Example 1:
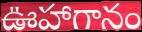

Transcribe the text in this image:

ఊహాగానం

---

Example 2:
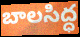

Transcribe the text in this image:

బాలసిద్ధ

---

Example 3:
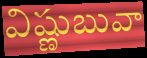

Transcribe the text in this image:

విష్ణుబువా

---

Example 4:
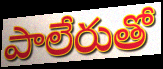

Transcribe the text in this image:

పాలేరుతో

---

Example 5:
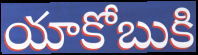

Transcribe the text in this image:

యాకోబుకి